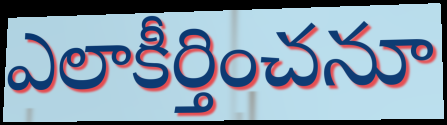
ఎలాకీర్తించనూ